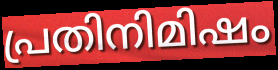
പ്രതിനിമിഷം